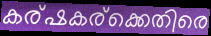
കര്ഷകര്ക്കെതിരെ